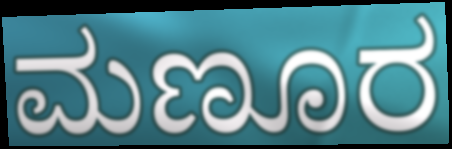
ಮಣೂರ